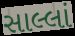
સાલ્લાં